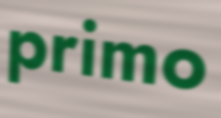
primo